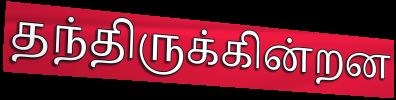
தந்திருக்கின்றன